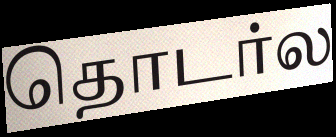
தொடர்ல